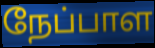
நேப்பாள